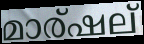
മാര്ഷല്